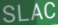
SLAC